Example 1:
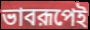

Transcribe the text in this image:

ভাবরূপেই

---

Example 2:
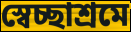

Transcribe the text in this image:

স্বেচ্ছাশ্রমে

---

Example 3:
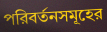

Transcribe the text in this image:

পরিবর্তনসমূহের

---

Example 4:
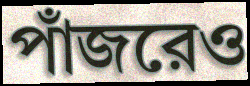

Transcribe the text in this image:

পাঁজরেও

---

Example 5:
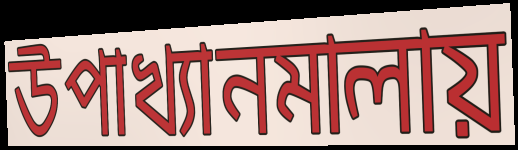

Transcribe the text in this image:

উপাখ্যানমালায়